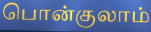
பொன்குலாம்